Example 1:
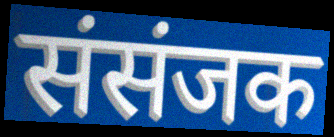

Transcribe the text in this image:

संसंजक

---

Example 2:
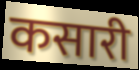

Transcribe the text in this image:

कसारी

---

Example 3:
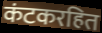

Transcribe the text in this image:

कंटकरहित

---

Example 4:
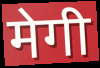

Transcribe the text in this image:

मेगी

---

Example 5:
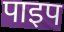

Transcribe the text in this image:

पाइप